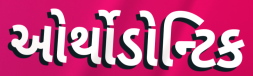
ઓર્થોડોન્ટિક